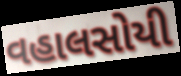
વહાલસોયી